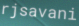
rjsavani